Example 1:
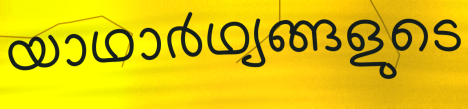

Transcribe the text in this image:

യാഥാർഥ്യങ്ങളുടെ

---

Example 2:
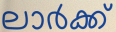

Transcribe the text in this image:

ലാർക്ക്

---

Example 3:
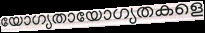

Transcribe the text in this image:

യോഗ്യതായോഗ്യതകളെ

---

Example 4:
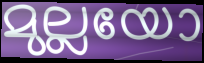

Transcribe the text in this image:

മുല്ലയോ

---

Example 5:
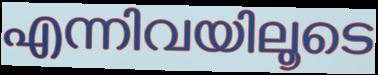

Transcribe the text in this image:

എന്നിവയിലൂടെ